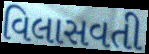
વિલાસવતી